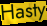
Hasty